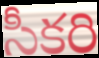
సీకరి